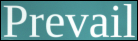
Prevail